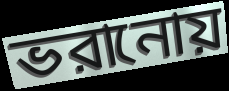
ভরানোয়